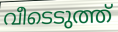
വീടെടുത്ത്